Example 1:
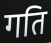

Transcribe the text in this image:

गति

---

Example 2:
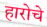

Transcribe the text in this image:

हारोचे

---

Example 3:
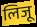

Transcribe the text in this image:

लिजू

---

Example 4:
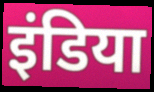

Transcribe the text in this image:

इंडिया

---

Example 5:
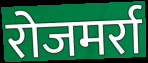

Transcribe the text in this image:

रोजमर्रा